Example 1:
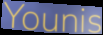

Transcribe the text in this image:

Younis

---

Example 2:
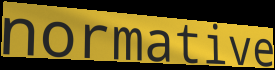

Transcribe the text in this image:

normative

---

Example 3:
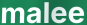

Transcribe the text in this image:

malee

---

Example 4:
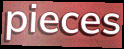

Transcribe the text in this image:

pieces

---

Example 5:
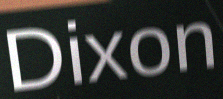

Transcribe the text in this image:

Dixon